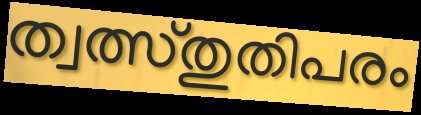
ത്വത്സ്തുതിപരം